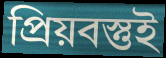
প্রিয়বস্তুই